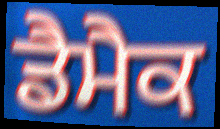
ਡੈਮੈਕ